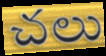
చలు